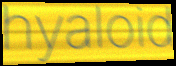
hyaloid